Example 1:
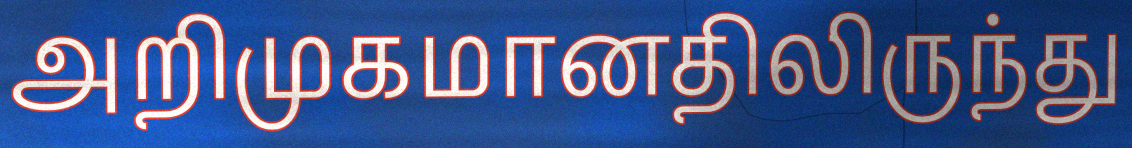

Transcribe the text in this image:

அறிமுகமானதிலிருந்து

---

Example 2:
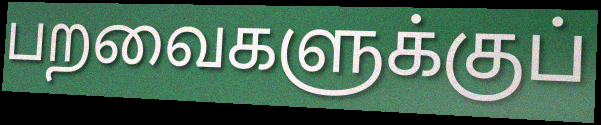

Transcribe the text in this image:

பறவைகளுக்குப்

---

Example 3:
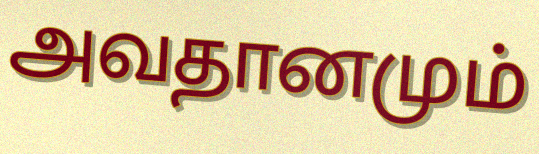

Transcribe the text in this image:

அவதானமும்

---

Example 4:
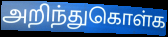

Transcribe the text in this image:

அறிந்துகொள்க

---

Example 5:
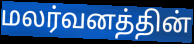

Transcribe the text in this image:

மலர்வனத்தின்